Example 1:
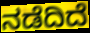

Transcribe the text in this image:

ನಡೆದಿದೆ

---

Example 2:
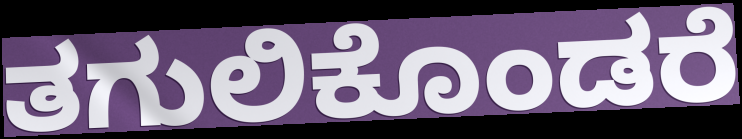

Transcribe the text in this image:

ತಗುಲಿಕೊಂಡರೆ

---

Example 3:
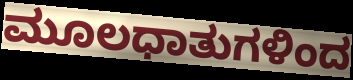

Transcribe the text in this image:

ಮೂಲಧಾತುಗಳಿಂದ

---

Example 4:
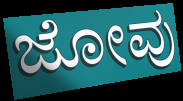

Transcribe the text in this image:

ಜೋವು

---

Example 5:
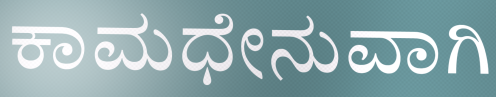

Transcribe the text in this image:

ಕಾಮಧೇನುವಾಗಿ